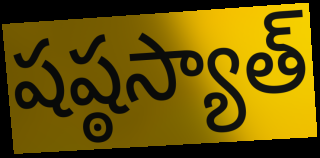
షష్ఠస్యాత్